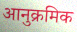
आनुक्रमिक